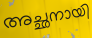
അച്ഛനായി